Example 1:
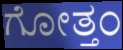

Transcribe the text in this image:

ಗೋತ್ತಂ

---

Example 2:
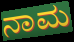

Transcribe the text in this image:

ನಾಮ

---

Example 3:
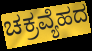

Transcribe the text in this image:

ಚಕ್ರವ್ಯೆಹದ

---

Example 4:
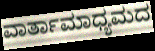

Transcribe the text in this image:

ವಾರ್ತಾಮಾಧ್ಯಮದ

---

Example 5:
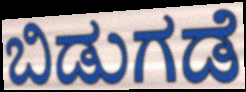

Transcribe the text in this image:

ಬಿಡುಗಡೆ